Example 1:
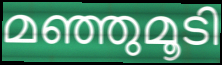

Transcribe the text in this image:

മഞ്ഞുമൂടി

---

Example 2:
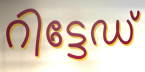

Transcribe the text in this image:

റിട്ടേഡ്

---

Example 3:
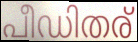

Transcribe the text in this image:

പീഡിതര്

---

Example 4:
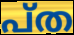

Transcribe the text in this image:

പ്ത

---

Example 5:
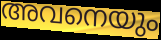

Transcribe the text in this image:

അവനെയും